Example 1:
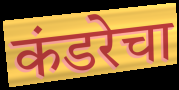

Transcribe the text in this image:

कंडरेचा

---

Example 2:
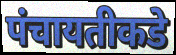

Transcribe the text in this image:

पंचायतीकडे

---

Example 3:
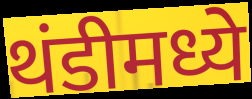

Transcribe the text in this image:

थंडीमध्ये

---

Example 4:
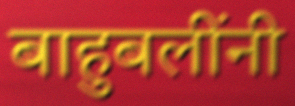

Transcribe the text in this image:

बाहुबलींनी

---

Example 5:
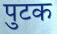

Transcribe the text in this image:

पुटक